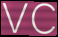
vc